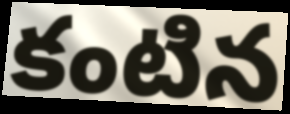
కంటిన